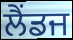
ਲੈਂਡਜ